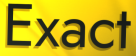
Exact